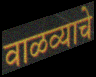
वाळव्याचे